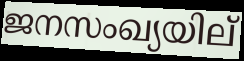
ജനസംഖ്യയില്